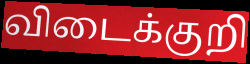
விடைக்குறி